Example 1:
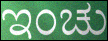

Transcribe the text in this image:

ಇಂಚು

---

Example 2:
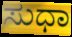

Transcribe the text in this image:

ಸುಧಾ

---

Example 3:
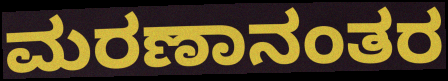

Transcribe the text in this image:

ಮರಣಾನಂತರ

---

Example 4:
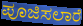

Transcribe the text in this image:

ಪೂಜಿಸಲಾರೆ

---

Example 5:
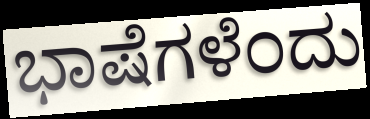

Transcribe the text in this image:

ಭಾಷೆಗಳೆಂದು